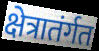
क्षेत्रातंर्गत